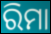
ରିମା